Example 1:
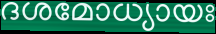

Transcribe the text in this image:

ദശമോധ്യായഃ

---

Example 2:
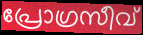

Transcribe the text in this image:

പ്രോഗ്രസീവ്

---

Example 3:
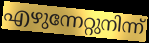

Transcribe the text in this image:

എഴുന്നേറ്റുനിന്ന്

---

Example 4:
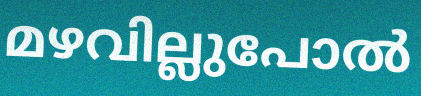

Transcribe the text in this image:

മഴവില്ലുപോൽ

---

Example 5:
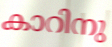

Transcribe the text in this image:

കാറിനു